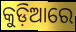
କୁଡ଼ିଆରେ